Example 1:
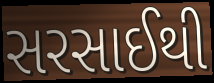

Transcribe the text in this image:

સરસાઈથી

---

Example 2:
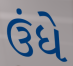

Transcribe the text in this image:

ઉંધે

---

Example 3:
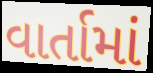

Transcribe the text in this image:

વાર્તામાં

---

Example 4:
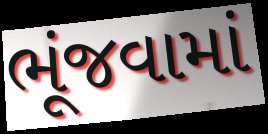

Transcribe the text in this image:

ભૂંજવામાં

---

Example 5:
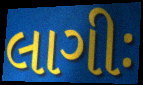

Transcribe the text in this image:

લાગીઃ